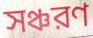
সঞ্চরণ